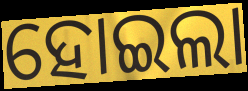
ହୋଇଲା